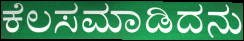
ಕೆಲಸಮಾಡಿದನು